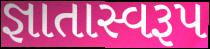
જ્ઞાતાસ્વરૂપ